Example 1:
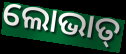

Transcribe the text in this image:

ଲୋଭାତ୍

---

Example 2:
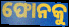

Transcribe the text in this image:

ଫୋନକୁ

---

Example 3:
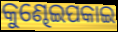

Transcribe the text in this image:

କୁଣ୍ଢେଇପକାଇ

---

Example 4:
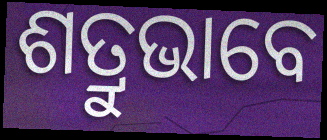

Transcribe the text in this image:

ଶତ୍ରୁଭାବେ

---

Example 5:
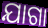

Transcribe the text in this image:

ଯାଗା